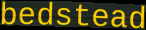
bedstead